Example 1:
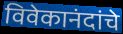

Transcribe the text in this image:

विवेकानंदांचे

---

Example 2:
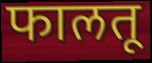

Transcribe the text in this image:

फालतू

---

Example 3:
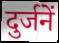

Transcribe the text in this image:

दुर्जनें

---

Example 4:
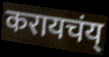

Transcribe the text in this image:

करायचंय्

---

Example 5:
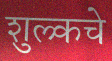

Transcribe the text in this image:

शुल्कचे